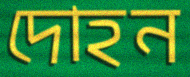
দোহন